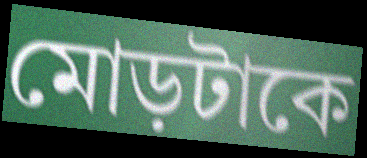
মোড়টাকে